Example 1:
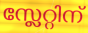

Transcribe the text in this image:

സ്ലേറ്റിന്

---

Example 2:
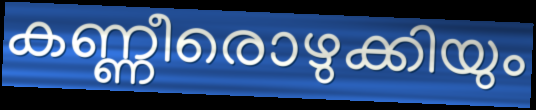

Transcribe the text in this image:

കണ്ണീരൊഴുക്കിയും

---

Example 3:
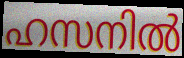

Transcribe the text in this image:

ഹസനിൽ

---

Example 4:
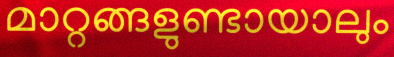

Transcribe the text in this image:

മാറ്റങ്ങളുണ്ടായാലും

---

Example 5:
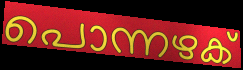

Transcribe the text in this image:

പൊന്നഴക്